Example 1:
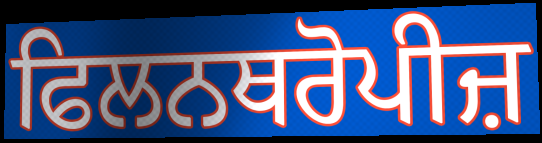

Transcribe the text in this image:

ਫਿਲਨਥਰੋਪੀਜ਼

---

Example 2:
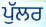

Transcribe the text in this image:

ਪੁੱਲਰ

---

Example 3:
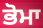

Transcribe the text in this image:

ਭੋਮਾ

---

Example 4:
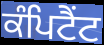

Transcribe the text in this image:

ਕੰਪਿਟੈਂਟ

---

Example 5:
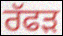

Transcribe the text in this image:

ਰੱਫੜ